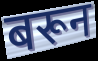
बरून